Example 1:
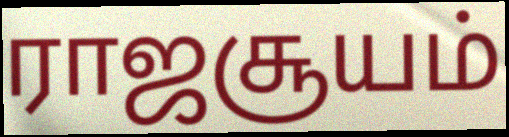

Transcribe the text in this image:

ராஜசூயம்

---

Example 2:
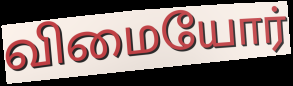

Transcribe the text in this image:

விமையோர்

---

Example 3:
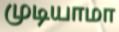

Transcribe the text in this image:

முடியாமா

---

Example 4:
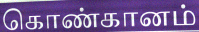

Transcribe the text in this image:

கொண்கானம்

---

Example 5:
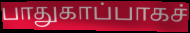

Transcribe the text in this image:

பாதுகாப்பாகச்